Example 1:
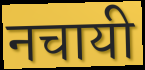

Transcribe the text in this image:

नचायी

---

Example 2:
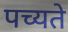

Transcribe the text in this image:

पच्यते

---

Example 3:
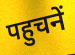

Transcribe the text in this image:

पहुचनें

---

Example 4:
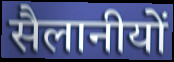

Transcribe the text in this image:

सैलानीयों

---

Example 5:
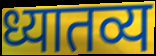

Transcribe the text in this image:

ध्यातव्य